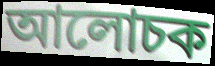
আলোচক